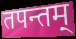
तपन्तम्